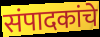
संपादकांचे